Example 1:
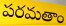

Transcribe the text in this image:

పరమతాం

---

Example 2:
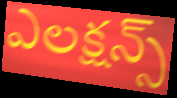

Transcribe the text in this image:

ఎలక్షన్స్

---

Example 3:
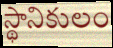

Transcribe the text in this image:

స్థానికులం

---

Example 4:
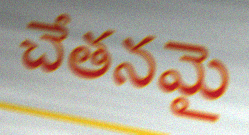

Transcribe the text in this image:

చేతనమై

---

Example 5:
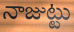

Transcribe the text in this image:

నాజుట్టు